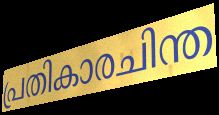
പ്രതികാരചിന്ത